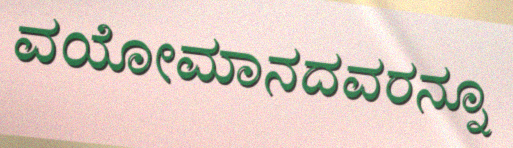
ವಯೋಮಾನದವರನ್ನೂ